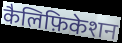
कैलिफ़िकेशन